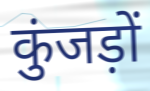
कुंजड़ों